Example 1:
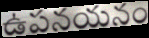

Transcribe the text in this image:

ఉపనయనం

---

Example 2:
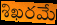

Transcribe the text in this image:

శిఖరమే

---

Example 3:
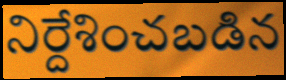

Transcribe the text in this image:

నిర్దేశించబడిన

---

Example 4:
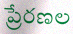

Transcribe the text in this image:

ప్రేరణల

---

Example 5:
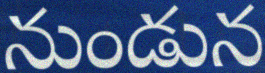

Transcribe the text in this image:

నుండున